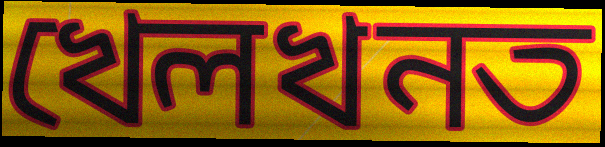
খেলখনত